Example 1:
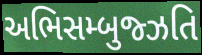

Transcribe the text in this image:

અભિસમ્બુજ્ઝતિ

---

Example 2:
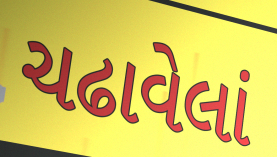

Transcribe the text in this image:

ચઢાવેલાં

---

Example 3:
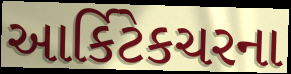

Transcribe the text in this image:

આર્કિટેકચરના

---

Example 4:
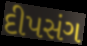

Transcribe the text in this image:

દીપસંગ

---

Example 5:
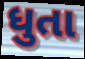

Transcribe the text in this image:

ધુતા